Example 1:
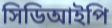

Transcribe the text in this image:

সিডিআইপি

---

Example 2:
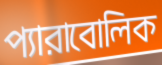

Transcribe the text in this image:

প্যারাবোলিক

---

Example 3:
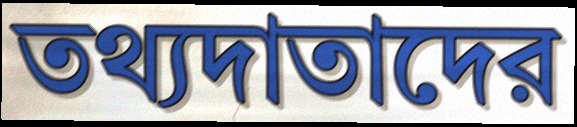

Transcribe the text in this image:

তথ্যদাতাদের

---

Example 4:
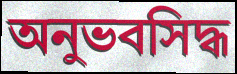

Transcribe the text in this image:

অনুভবসিদ্ধ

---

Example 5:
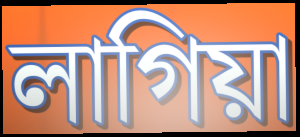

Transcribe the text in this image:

লাগিয়া